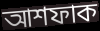
আশফাক